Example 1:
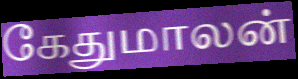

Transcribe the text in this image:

கேதுமாலன்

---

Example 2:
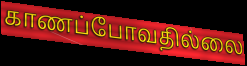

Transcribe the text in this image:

காணப்போவதில்லை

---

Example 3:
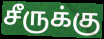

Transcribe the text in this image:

சீருக்கு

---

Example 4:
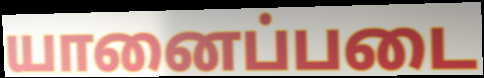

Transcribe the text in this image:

யானைப்படை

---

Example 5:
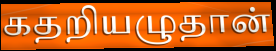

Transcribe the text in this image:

கதறியழுதான்